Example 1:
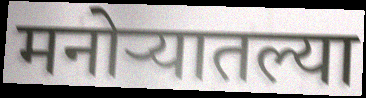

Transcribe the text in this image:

मनोर्‍यातल्या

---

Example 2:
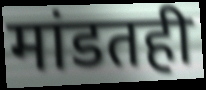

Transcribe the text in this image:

मांडतही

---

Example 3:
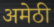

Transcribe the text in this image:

अमेठी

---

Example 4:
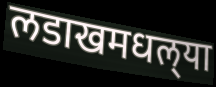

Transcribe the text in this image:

लडाखमधल्या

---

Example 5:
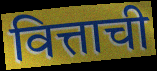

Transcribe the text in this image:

वित्ताची